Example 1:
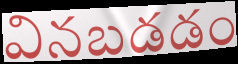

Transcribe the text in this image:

వినబడడం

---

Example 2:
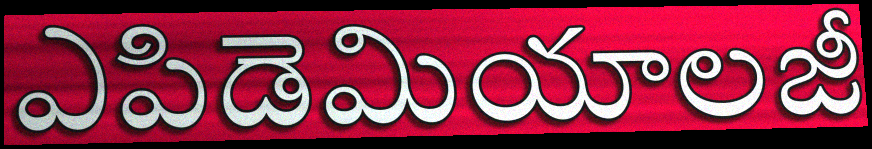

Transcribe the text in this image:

ఎపిడెమియాలజీ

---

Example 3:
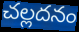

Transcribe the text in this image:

చల్లదనం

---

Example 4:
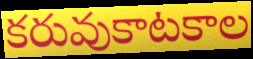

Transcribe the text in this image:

కరువుకాటకాల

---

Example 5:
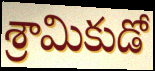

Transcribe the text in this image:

శ్రామికుడో